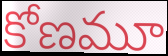
కోణమూ